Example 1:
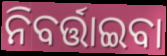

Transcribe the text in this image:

ନିବର୍ତ୍ତାଇବା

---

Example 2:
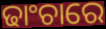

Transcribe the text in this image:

ଢାଂଚାରେ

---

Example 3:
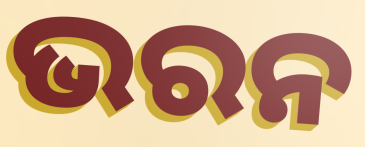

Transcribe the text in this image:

ଭରନ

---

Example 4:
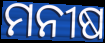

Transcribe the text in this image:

ମନୀଷ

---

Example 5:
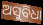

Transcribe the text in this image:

ଅସୁବିଧା